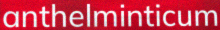
anthelminticum